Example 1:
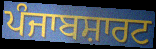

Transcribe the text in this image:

ਪੰਜਾਬਸ਼ਾਰਟ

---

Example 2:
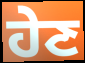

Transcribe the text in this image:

ਹੇਣ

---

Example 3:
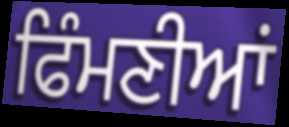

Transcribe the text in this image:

ਫਿੰਮਣੀਆਂ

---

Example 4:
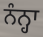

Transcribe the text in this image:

ਨੰਨ੍ਹਾ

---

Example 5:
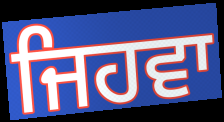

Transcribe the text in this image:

ਜਿਹਵਾ